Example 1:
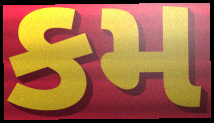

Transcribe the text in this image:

કમ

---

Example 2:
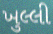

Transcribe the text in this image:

ખુલ્લી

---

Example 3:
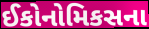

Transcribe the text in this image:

ઈકોનોમિકસના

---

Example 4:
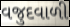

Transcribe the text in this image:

વજુદવાળી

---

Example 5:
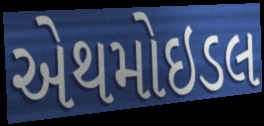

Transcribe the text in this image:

એથમોઇડલ